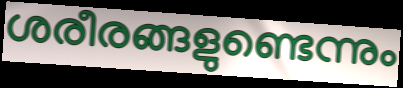
ശരീരങ്ങളുണ്ടെന്നും